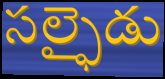
సల్ఫైడు